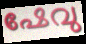
ഷേവു